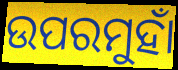
ଉପରମୁହାଁ